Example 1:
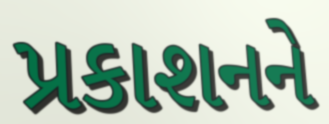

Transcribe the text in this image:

પ્રકાશનને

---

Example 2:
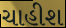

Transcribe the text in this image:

ચાહીશ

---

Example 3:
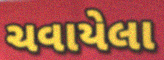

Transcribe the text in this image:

ચવાયેલા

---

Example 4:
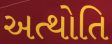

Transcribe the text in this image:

અત્થોતિ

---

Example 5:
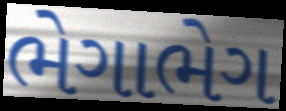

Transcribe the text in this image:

ભેગાભેગ